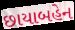
છાયાબહેન